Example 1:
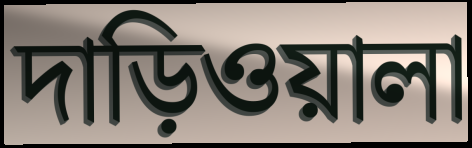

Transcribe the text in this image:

দাড়িওয়ালা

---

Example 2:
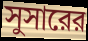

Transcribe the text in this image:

সুসারের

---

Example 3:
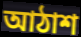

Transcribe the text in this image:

আঠাশ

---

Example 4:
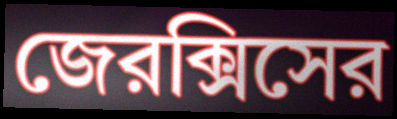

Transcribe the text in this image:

জেরক্সিসের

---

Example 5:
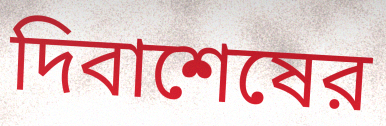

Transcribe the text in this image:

দিবাশেষের